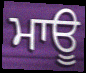
ਮਾਊ